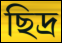
ছিদ্ৰ